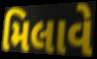
મિલાવે